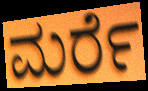
ಮರ್ರೆ